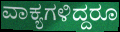
ವಾಕ್ಯಗಳಿದ್ದರೂ